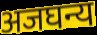
अजघन्य